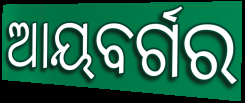
ଆୟବର୍ଗର